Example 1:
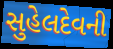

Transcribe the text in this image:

સુહેલદેવની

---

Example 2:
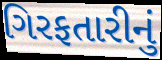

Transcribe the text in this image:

ગિરફતારીનું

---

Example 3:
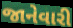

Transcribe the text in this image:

જાનેવારી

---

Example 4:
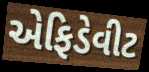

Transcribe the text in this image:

એફિડેવીટ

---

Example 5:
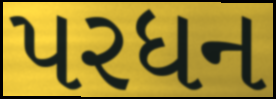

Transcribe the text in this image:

પરધન